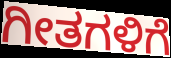
ಗೀತಗಳಿಗೆ